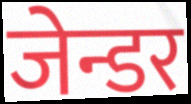
जेन्डर